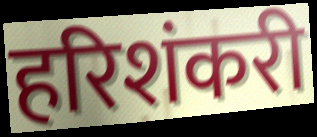
हरिशंकरी